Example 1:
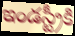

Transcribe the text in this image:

ఇండస్ట్రీకి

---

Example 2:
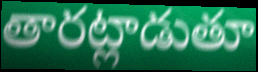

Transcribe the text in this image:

తారట్లాడుతూ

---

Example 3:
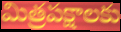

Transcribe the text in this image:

మిత్రపక్షాలకు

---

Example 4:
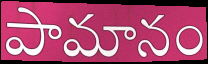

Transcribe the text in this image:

పామానం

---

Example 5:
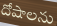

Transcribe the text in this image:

దోషాలను